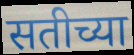
सतीच्या